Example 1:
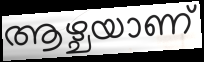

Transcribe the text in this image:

ആഴ്ചയാണ്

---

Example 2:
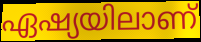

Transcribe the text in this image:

ഏഷ്യയിലാണ്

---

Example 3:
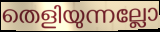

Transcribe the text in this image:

തെളിയുന്നല്ലോ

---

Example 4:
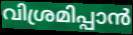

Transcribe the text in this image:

വിശ്രമിപ്പാൻ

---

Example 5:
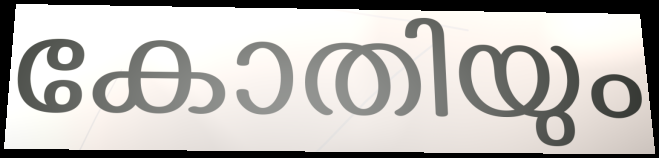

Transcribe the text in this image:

കോതിയും